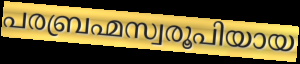
പരബ്രഹ്മസ്വരൂപിയായ